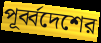
পূর্ব্বদেশের